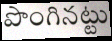
పొంగినట్టు